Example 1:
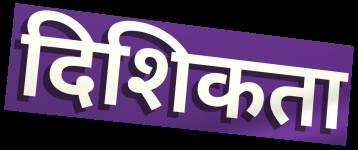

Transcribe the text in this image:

दिशिकता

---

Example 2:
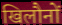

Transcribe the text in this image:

खिलौनों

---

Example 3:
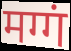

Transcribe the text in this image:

मग्गं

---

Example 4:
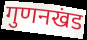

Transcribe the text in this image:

गुणनखंड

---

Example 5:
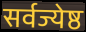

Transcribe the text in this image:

सर्वज्येष्ठ